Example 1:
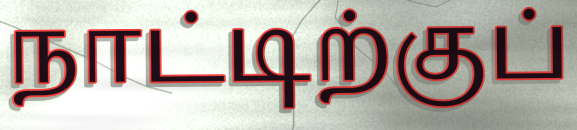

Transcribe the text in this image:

நாட்டிற்குப்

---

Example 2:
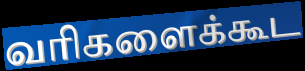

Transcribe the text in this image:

வரிகளைக்கூட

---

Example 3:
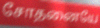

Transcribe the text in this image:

சோதனையே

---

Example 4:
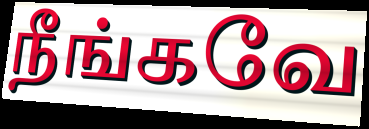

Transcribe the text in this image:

நீங்கவே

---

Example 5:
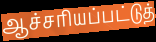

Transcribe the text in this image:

ஆச்சரியப்பட்டுத்